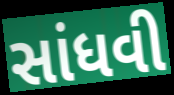
સાંધવી